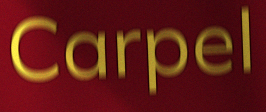
Carpel